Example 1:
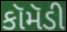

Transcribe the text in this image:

કૉમૅડી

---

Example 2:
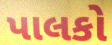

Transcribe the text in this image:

પાલકો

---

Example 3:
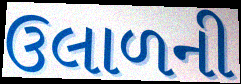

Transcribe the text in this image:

ઉલાળની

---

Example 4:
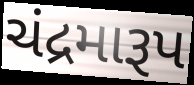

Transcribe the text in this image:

ચંદ્રમારૂપ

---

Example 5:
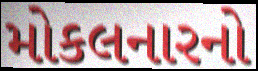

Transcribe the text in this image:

મોકલનારનો